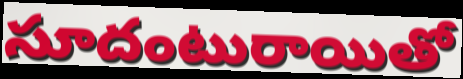
సూదంటురాయితో